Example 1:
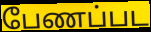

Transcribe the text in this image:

பேணப்பட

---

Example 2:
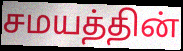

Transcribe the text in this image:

சமயத்தின்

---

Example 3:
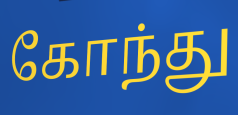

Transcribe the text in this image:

கோந்து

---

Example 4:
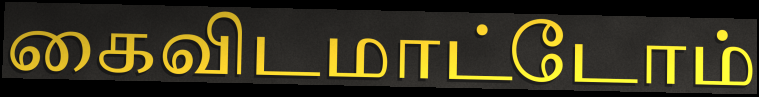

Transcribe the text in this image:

கைவிடமாட்டோம்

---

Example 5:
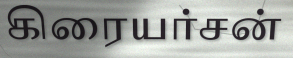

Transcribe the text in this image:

கிரையர்சன்